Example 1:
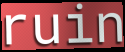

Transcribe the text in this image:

ruin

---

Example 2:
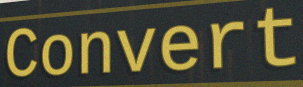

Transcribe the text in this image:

Convert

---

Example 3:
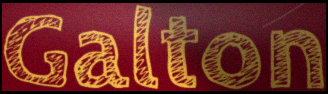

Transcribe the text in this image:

Galton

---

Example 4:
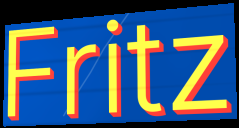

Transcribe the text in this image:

Fritz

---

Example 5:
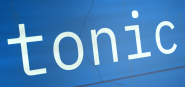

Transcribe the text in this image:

tonic